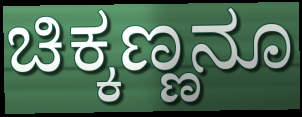
ಚಿಕ್ಕಣ್ಣನೂ